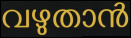
വഴുതാൻ